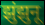
झुंझुनू